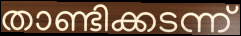
താണ്ടിക്കടന്ന്